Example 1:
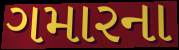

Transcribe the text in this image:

ગમારના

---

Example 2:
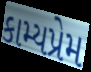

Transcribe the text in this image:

કામ્યપ્રેમ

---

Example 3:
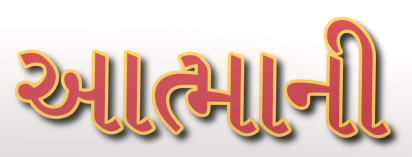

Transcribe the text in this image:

આત્માની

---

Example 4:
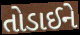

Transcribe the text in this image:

તોડાઈને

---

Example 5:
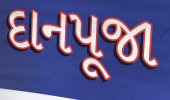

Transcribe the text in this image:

દાનપૂજા